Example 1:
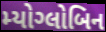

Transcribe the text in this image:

મ્યોગ્લોબિન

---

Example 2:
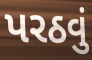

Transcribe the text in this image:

પરઠવું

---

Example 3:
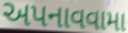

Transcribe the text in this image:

અપનાવવામા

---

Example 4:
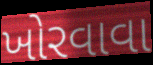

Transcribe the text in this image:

ખોરવાવા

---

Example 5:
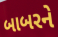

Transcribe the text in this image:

બાબરને